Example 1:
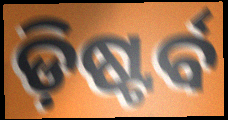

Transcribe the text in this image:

ଡ଼ିଷ୍ଟର୍ବ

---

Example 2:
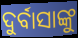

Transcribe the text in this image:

ଦୁର୍ବାସାଙ୍କୁ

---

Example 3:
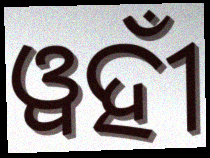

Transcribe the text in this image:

ୱହୀଁ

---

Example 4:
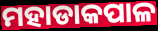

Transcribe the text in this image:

ମହାଡାକପାଳ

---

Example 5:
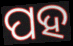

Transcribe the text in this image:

ପହ